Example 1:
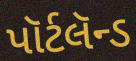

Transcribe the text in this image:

પૉર્ટલૅન્ડ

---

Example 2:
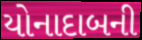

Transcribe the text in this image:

યોનાદાબની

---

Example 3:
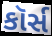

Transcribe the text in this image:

કૉર્સ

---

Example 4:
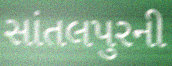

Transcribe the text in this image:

સાંતલપુરની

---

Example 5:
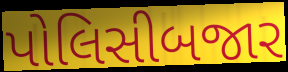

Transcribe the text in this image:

પોલિસીબજાર